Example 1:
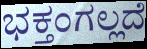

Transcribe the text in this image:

ಭಕ್ತಂಗಲ್ಲದೆ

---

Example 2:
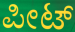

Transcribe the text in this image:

ಪೀಟ್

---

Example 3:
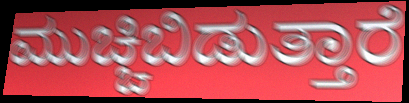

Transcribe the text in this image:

ಮುಚ್ಚಿಬಿಡುತ್ತಾರೆ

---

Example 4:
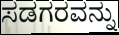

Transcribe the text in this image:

ಸಡಗರವನ್ನು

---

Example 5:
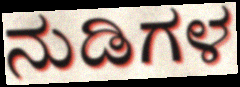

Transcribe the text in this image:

ನುಡಿಗಳ